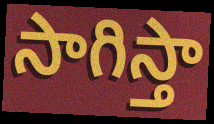
సాగిస్తా